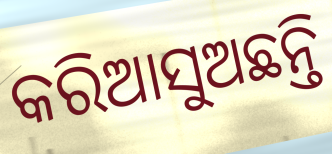
କରିଆସୁଅଛନ୍ତି